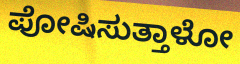
ಪೋಷಿಸುತ್ತಾಳೋ